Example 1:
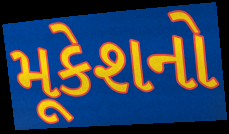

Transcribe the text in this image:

મૂકેશનો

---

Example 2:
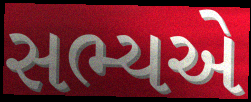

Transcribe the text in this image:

સભ્યએ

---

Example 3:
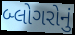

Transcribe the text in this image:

બ્લોગરોનું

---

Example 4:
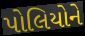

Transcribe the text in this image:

પોલિયોને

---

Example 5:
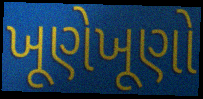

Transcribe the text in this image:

ખૂણેખૂણો